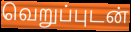
வெறுப்புடன்